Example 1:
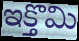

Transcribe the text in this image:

ఇక్తొమి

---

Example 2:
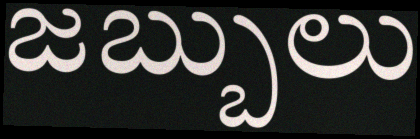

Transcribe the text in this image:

జబ్బులు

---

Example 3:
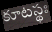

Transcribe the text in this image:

కూటస్థః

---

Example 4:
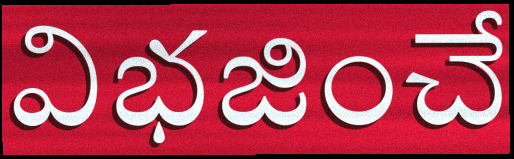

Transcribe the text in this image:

విభజించే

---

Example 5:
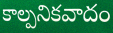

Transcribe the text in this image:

కాల్పనికవాదం